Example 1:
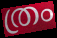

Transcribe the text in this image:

ത്രം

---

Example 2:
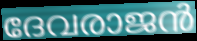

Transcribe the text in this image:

ദേവരാജൻ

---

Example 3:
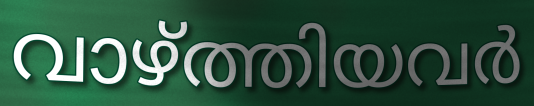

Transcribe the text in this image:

വാഴ്ത്തിയവർ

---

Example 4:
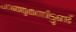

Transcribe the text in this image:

പറഞ്ഞുതന്നിട്ടുണ്ട്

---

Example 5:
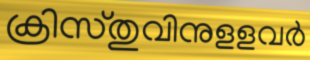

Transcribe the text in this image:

ക്രിസ്തുവിനുളളവർ